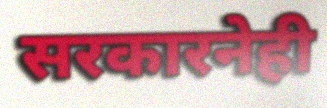
सरकारनेही